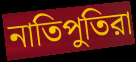
নাতিপুতিরা